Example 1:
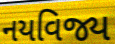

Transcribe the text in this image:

નયવિજ્ય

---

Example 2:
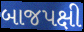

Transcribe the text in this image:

બાજપક્ષી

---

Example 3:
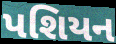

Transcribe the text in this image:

પશિયન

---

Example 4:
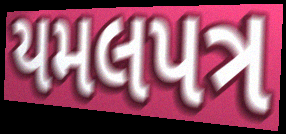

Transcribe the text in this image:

યમલપત્ર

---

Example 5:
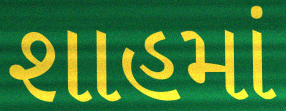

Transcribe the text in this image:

શાહમાં